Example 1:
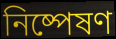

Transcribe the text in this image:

নিষ্পেষণ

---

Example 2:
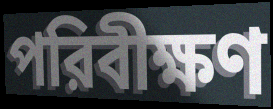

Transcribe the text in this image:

পরিবীক্ষণ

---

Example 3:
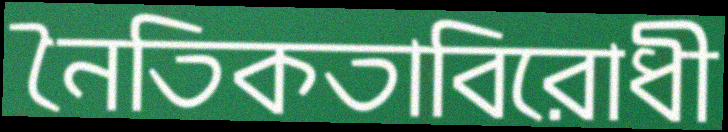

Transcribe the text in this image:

নৈতিকতাবিরোধী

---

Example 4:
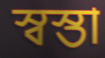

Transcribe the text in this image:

স্বস্তা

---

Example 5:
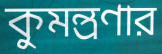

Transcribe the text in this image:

কুমন্ত্রণার